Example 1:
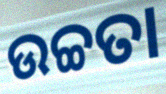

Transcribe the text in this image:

ଉଚ୍ଚତା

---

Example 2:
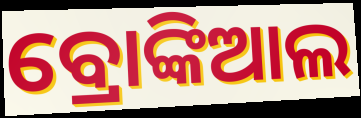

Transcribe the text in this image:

ବ୍ରୋଙ୍କିଆଲ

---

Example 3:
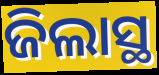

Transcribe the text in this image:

ଜିଲାସ୍ଥ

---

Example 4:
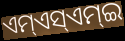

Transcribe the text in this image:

ଏମ୍ଏସ୍ଏମ୍ଇ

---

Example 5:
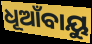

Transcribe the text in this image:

ଧୂଆଁବାୟୁ